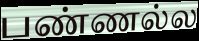
பண்ணல்ல